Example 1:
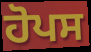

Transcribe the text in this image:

ਹੋਪਸ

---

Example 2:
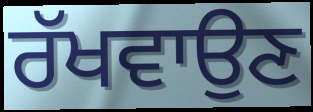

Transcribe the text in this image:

ਰੱਖਵਾਉਣ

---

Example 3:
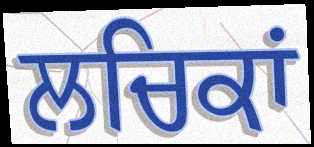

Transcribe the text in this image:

ਲਚਿਕਾਂ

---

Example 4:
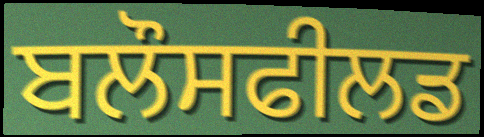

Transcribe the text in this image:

ਬਲੌਸਫੀਲਡ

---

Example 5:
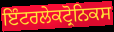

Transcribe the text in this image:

ਇੰਟਰਲੇਕਟ੍ਰੋਨਿਕਸ